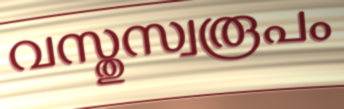
വസ്തുസ്വരൂപം